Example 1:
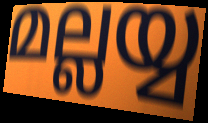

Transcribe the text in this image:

മല്ലയ്യ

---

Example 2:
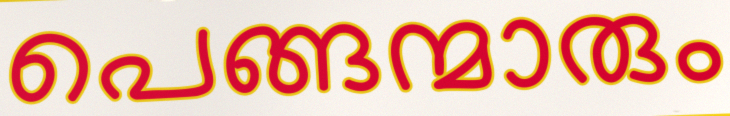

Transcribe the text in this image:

പെങ്ങന്മാരും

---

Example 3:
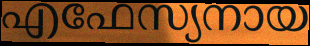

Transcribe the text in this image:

എഫേസ്യനായ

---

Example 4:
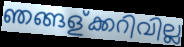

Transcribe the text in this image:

ഞങ്ങള്ക്കറിവില്ല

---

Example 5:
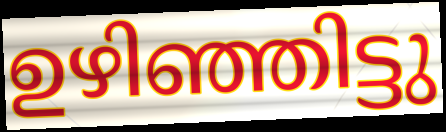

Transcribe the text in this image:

ഉഴിഞ്ഞിട്ടു